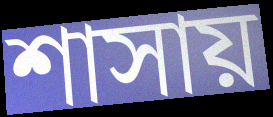
শাসায়